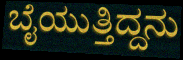
ಬೈಯುತ್ತಿದ್ದನು